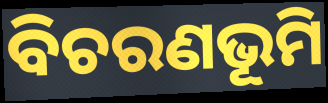
ବିଚରଣଭୂମି